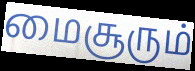
மைசூரும்